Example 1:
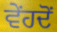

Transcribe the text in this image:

ਵੇਂਹਦੋਂ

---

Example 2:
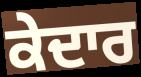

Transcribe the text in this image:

ਕੇਦਾਰ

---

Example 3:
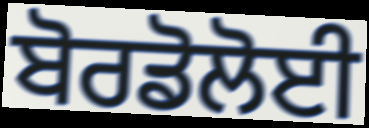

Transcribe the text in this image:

ਬੋਰਡੋਲੋਈ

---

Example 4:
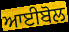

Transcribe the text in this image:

ਆਈਬੋਲ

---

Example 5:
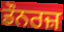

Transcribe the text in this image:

ਡੌਨਰਜ਼